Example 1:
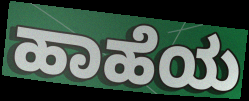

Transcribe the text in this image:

ಹಾಹೆಯ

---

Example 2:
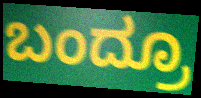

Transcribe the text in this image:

ಬಂದ್ರೂ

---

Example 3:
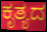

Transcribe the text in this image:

ಕೃತ್ಯದ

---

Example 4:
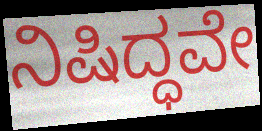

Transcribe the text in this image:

ನಿಷಿದ್ಧವೇ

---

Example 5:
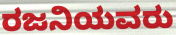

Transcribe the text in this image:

ರಜನಿಯವರು